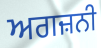
ਅਗਜ਼ਨੀ